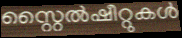
സ്റ്റൈൽഷീറ്റുകൾ